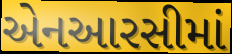
એનઆરસીમાં